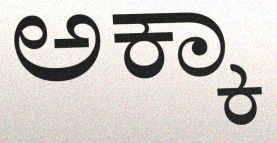
ಅಕ್ಕಾ